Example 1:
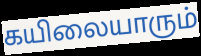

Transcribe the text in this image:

கயிலையாரும்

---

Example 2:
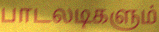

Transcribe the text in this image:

பாடலடிகளும்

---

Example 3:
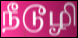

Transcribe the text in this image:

நீடூழி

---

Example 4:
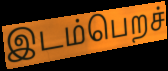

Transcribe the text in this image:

இடம்பெறச்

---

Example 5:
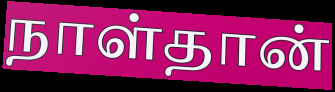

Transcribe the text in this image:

நாள்தான்